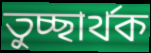
তুচ্ছার্থক